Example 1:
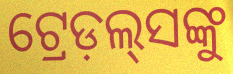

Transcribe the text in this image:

ଟ୍ରେଡ଼ଲ୍‍ସଙ୍କୁ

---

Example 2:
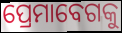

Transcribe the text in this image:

ପ୍ରେମାବେଗକୁ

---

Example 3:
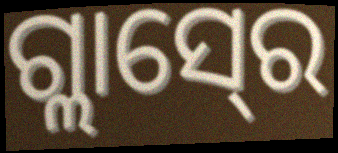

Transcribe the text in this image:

ଗ୍ଲାସ୍‍ରେ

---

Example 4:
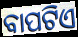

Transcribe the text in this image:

ବାପଟିଏ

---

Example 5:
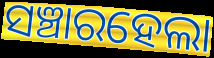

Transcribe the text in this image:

ସଞ୍ଚାରହେଲା